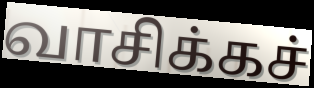
வாசிக்கச்